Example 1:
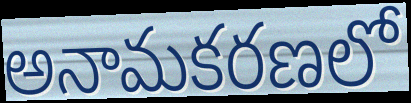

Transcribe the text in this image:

అనామకరణలో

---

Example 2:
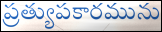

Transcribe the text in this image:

ప్రత్యుపకారమును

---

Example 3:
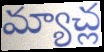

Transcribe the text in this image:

మ్యాచ్ల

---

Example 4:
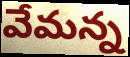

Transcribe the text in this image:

వేమన్న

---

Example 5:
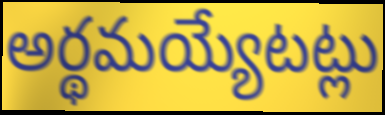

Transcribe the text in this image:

అర్థమయ్యేటట్లు